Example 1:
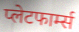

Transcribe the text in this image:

प्लेटफार्म्स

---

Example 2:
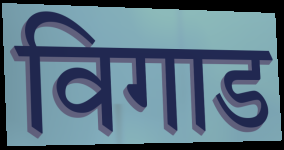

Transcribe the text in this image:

विगाड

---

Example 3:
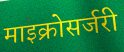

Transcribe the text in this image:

माइक्रोसर्जरी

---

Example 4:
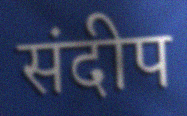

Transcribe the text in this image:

संदीप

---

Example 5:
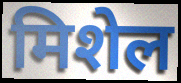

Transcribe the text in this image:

मिशेल